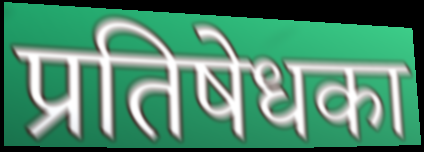
प्रतिषेधका